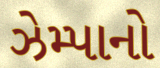
ઝેમ્પાનો